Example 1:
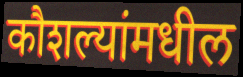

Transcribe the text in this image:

कौशल्यांमधील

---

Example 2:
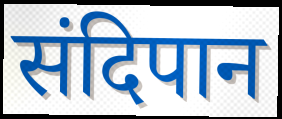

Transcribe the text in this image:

संदिपान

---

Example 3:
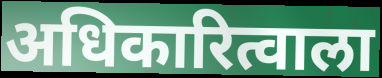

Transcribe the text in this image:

अधिकारित्वाला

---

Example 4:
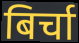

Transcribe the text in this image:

बिर्चा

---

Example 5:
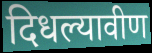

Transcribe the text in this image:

दिधल्यावीण